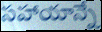
సహాయాన్నే